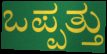
ಒಪ್ಪತ್ತು